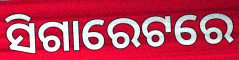
ସିଗାରେଟରେ